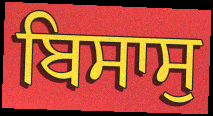
ਬਿਸਾਸੁ